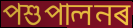
পশুপালনৰ